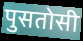
पुसतोसी